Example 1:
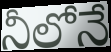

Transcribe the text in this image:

నీలోనే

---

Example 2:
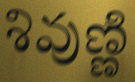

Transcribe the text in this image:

శివుణ్ణి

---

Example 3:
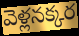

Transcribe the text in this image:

వెళ్లనక్కర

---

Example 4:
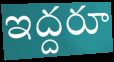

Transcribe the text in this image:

ఇద్దరూ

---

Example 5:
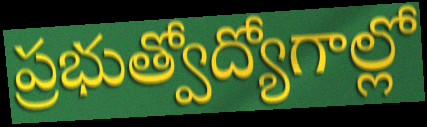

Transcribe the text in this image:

ప్రభుత్వోద్యోగాల్లో